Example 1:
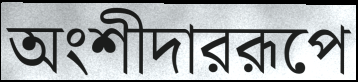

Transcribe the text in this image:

অংশীদাররূপে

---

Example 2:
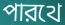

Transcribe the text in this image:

পারথে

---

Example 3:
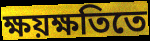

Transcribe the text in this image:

ক্ষয়ক্ষতিতে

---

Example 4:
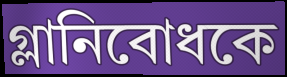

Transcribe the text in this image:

গ্লানিবোধকে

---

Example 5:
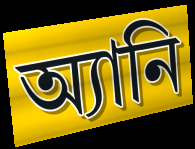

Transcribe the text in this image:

অ্যানি